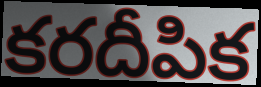
కరదీపిక